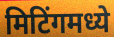
मिटिंगमध्ये